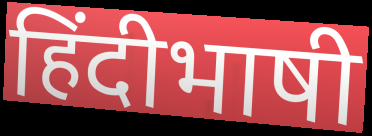
हिंदीभाषी